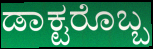
ಡಾಕ್ಟರೊಬ್ಬ